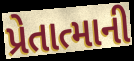
પ્રેતાત્માની